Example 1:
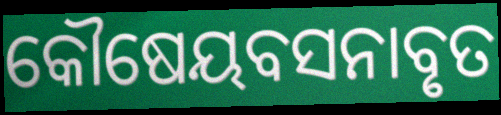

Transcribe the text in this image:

କୌଷେୟବସନାବୃତ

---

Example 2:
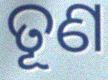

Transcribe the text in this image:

ତୂଣ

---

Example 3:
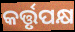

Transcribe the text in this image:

କର୍ତ୍ତୃପକ୍ଷ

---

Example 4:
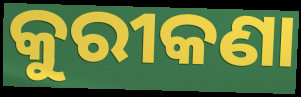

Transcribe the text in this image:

କୁରୀକଣା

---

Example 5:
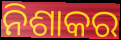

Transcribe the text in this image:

ନିଶାକର